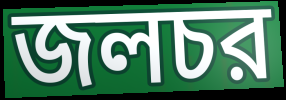
জলচর